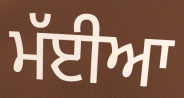
ਮੱਈਆ